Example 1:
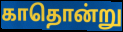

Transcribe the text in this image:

காதொன்று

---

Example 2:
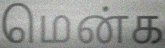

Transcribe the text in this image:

மென்க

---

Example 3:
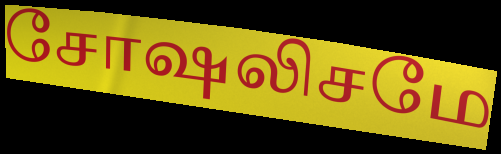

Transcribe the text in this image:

சோஷலிசமே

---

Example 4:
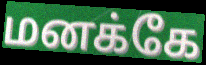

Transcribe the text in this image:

மனக்கே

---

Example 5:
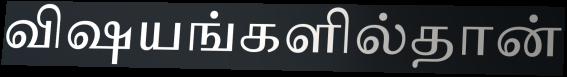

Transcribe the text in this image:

விஷயங்களில்தான்